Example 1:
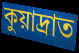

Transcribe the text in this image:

কুয়াদ্রাত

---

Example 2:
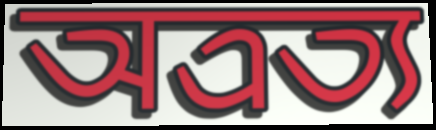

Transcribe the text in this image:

অত্রত্য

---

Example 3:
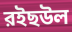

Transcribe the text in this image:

রইছউল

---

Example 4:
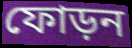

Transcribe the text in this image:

ফোড়ন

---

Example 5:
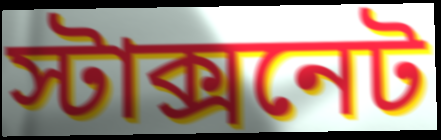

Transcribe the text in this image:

স্টাক্সনেট